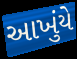
આખુંયે